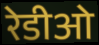
रेडीओ